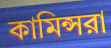
কামিন্সরা